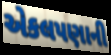
એકલપણાની